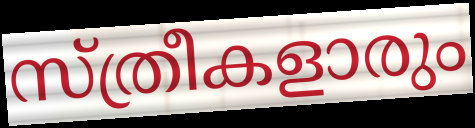
സ്ത്രീകളാരും